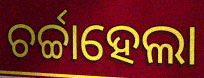
ଚର୍ଚ୍ଚାହେଲା